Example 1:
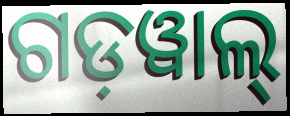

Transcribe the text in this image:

ଗଡ଼ୱାଲ୍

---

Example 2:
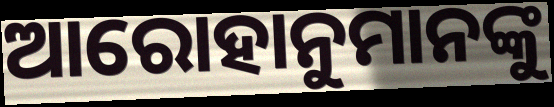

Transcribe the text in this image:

ଆରୋହାନୁମାନଙ୍କୁ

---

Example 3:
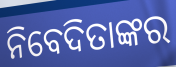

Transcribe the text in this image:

ନିବେଦିତାଙ୍କର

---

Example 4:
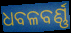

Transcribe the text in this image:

ଧବଳବର୍ଣ୍ଣ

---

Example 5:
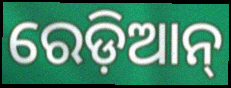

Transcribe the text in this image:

ରେଡ଼ିଆନ୍